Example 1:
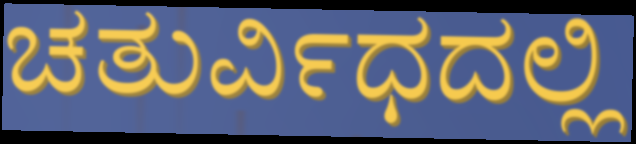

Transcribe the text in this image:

ಚತುರ್ವಿಧದಲ್ಲಿ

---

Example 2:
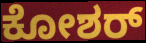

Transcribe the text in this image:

ಕೋಶರ್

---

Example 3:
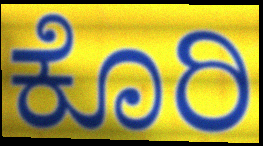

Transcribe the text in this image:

ಕೊರಿ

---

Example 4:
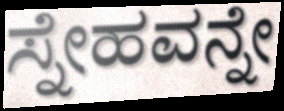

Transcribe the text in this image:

ಸ್ನೇಹವನ್ನೇ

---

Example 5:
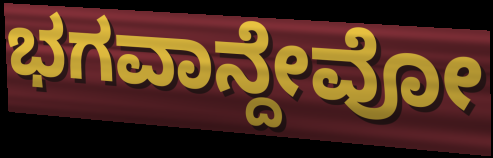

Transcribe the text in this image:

ಭಗವಾನ್ದೇವೋ